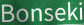
Bonseki